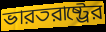
ভারতরাষ্ট্রের